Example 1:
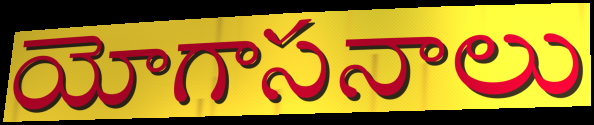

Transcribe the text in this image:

యోగాసనాలు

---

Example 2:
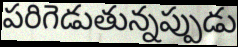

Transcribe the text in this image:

పరిగెడుతున్నప్పుడు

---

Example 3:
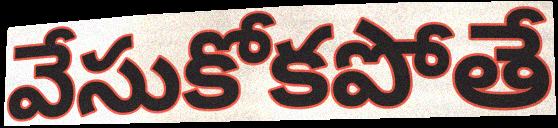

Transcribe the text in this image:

వేసుకోకపోతే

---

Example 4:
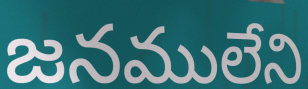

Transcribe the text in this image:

జనములేని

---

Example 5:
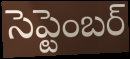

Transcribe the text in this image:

సెప్టెంబర్